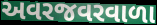
અવરજવરવાળા